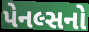
પેનલ્સનો